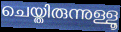
ചെയ്തിരുന്നുള്ളൂ